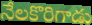
నేలకొరిగాడు